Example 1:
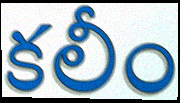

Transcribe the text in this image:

కలీం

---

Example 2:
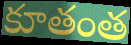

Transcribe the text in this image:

కూతంత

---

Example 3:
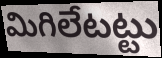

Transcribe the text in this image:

మిగిలేటట్టు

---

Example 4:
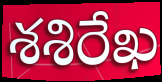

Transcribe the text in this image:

శశిరేఖ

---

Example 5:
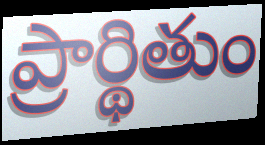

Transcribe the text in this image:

ప్రార్థితుం